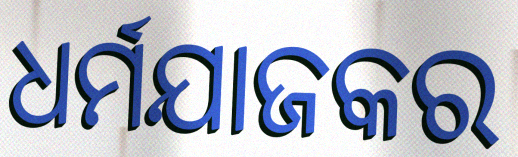
ଧର୍ମଯାଜକର